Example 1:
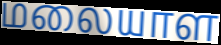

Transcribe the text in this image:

மலையாள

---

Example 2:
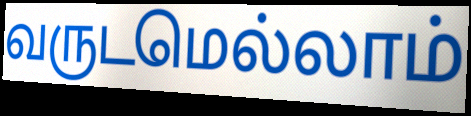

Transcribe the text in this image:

வருடமெல்லாம்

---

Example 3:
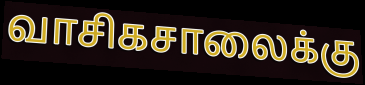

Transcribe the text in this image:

வாசிகசாலைக்கு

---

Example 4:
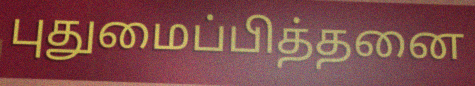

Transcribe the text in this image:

புதுமைப்பித்தனை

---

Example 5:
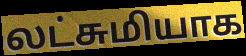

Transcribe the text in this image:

லட்சுமியாக